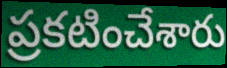
ప్రకటించేశారు